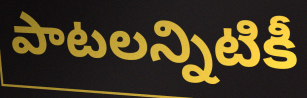
పాటలన్నిటికీ